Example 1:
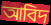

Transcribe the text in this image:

আবিদ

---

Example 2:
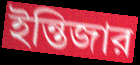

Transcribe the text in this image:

ইন্তিজার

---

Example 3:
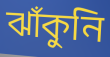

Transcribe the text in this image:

ঝাঁকুনি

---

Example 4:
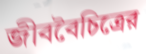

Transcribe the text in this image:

জীববৈচিত্রের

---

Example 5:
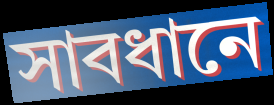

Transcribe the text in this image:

সাবধানে